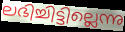
ലഭിച്ചിട്ടില്ലെന്നു